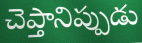
చెప్తానిప్పుడు